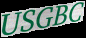
USGBC